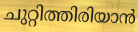
ചുറ്റിത്തിരിയാൻ